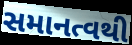
સમાનત્વથી